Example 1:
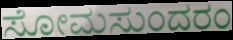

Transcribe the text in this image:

ಸೋಮಸುಂದರಂ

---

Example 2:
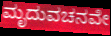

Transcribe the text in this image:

ಮೃದುವಚನವೇ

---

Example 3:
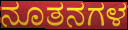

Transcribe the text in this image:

ನೂತನಗಳ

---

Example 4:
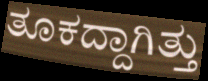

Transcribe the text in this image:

ತೂಕದ್ದಾಗಿತ್ತು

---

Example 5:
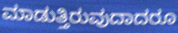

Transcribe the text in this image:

ಮಾಡುತ್ತಿರುವುದಾದರೂ